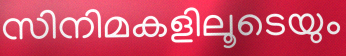
സിനിമകളിലൂടെയും